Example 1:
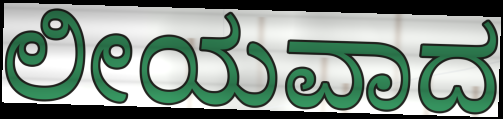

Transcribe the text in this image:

ಲೀಯವಾದ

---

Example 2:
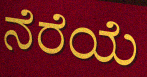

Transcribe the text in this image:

ನೆರೆಯೆ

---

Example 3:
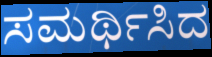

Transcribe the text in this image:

ಸಮರ್ಥಿಸಿದ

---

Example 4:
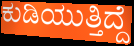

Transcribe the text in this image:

ಕುಡಿಯುತ್ತಿದ್ದೆ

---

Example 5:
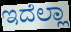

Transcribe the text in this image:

ಇದೆಲ್ಲಾ